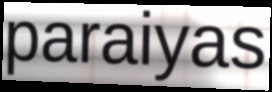
paraiyas